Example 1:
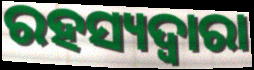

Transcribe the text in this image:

ରହସ୍ୟଦ୍ଵାରା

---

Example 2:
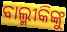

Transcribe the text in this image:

ବାଲ୍ମୀକିଙ୍କୁ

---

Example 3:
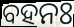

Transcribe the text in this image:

ବହନଃ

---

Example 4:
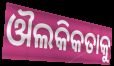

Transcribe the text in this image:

ଔଲକିକତାକୁ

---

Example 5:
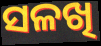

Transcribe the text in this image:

ସଳଖି